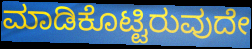
ಮಾಡಿಕೊಟ್ಟಿರುವುದೇ